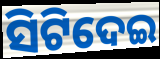
ସିଟିଦେଇ